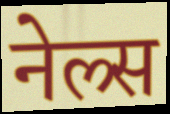
नेल्स